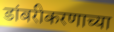
डांबरीकरणाच्या